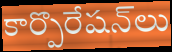
కార్పొరేషన్‌లు